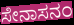
ಸೇನಾಸನಂ